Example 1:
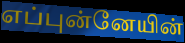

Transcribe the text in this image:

எப்புன்னேயின்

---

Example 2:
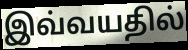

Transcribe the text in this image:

இவ்வயதில்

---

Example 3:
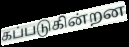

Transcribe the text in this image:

கப்படுகின்றன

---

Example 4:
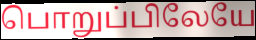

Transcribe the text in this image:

பொறுப்பிலேயே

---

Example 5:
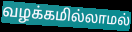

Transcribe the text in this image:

வழக்கமில்லாமல்